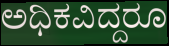
ಅಧಿಕವಿದ್ದರೂ